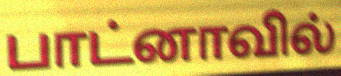
பாட்னாவில்